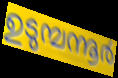
ഉടുമ്പന്നൂർ